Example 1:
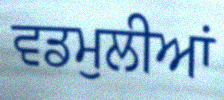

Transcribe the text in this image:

ਵਡਮੁਲੀਆਂ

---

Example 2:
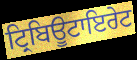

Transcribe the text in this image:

ਟ੍ਰਿਬਿਊਟਾਇਰੇਟ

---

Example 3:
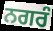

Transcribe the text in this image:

ਨਗਰੰ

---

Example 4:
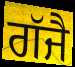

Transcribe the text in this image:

ਗੱਜੈ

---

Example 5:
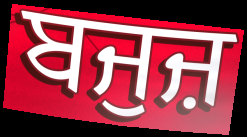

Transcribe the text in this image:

ਬਜੁਜ਼